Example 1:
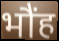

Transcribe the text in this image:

भौंह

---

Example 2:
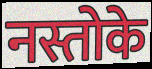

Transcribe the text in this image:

नस्तोके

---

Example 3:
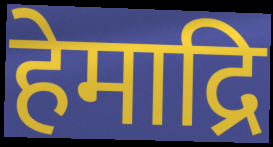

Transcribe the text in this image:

हेमाद्रि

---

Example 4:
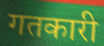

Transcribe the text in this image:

गतकारी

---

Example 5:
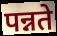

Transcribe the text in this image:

पन्नते